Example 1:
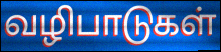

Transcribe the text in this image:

வழிபாடுகள்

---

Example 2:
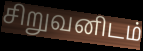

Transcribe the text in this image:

சிறுவனிடம்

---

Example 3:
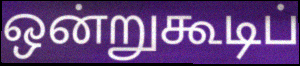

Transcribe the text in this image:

ஒன்றுகூடிப்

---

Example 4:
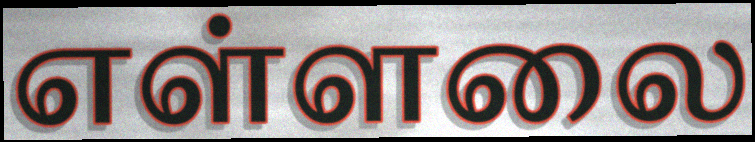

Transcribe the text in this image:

எள்ளலை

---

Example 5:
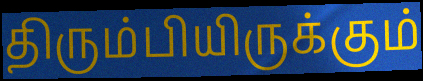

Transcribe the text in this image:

திரும்பியிருக்கும்